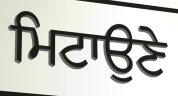
ਮਿਟਾਉਣੇ